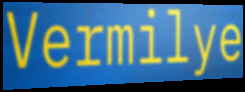
Vermilye